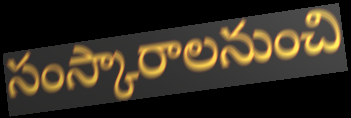
సంస్కారాలనుంచి